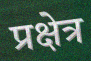
प्रक्षेत्र